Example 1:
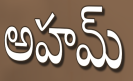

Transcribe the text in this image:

అహమ్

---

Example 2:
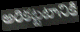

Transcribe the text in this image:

అరికట్టటానికి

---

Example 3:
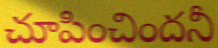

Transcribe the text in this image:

చూపించిందనీ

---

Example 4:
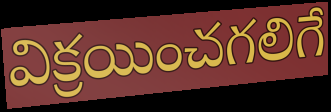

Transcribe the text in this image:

విక్రయించగలిగే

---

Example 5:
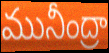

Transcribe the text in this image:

మునీంద్రా